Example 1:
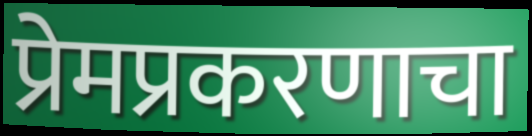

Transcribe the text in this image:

प्रेमप्रकरणाचा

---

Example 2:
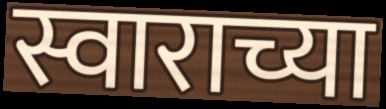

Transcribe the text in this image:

स्वाराच्या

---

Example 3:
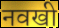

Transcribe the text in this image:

नवखी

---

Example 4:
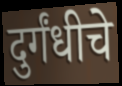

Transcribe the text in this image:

दुर्गंधीचे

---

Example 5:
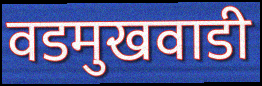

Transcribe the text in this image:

वडमुखवाडी